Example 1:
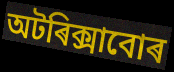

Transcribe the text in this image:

অটৰিক্সাবোৰ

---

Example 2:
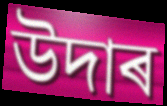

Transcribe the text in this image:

উদাৰ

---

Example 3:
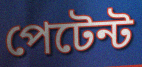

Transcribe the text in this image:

পেটেন্ট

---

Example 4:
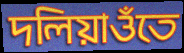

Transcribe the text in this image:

দলিয়াওঁতে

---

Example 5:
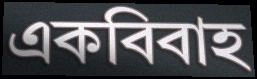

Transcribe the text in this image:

একবিবাহ